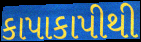
કાપાકાપીથી